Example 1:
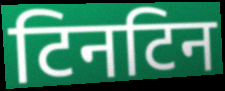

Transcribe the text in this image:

टिनटिन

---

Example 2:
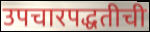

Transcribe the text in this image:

उपचारपद्धतीची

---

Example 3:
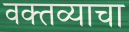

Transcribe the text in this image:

वक्तव्याचा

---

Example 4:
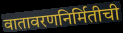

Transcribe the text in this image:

वातावरणनिर्मितीची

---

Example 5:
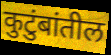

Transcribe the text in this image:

कुटुंबांतील